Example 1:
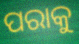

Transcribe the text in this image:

ପରାକୁ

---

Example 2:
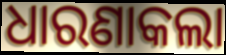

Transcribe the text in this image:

ଧାରଣାକଲା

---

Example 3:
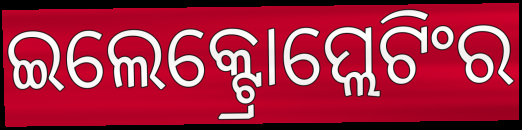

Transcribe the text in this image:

ଇଲେକ୍ଟ୍ରୋପ୍ଲେଟିଂର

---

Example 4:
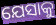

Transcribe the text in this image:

ଯେସାକୁ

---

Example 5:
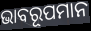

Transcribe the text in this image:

ଭାବରୂପମାନ